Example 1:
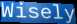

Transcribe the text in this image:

Wisely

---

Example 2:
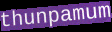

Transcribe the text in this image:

thunpamum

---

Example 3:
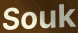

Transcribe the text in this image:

Souk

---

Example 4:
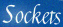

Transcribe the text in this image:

Sockets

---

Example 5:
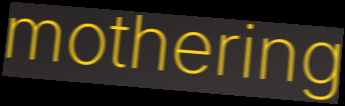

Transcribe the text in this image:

mothering